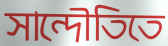
সান্দৌতিতে